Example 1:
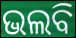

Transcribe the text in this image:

ଭଲବି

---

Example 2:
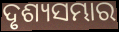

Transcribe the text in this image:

ଦୃଶ୍ୟସମ୍ଭାର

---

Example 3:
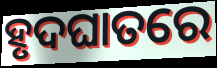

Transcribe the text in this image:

ହୃଦଘାତରେ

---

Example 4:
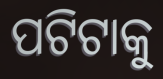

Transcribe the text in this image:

ପଟିଟାକୁ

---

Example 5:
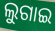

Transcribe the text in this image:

ଲୁଗାଇ